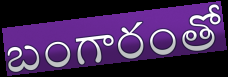
బంగారంతో